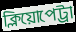
ক্লিয়োপেট্রা